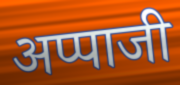
अप्पाजी